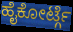
ಹೈಕೋರ್ಟ್ಗೆ